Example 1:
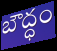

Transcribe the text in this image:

బౌద్ధం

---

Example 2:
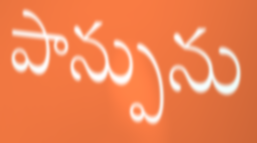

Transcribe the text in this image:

పాన్పును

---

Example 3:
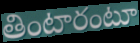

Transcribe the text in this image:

తింటారంటూ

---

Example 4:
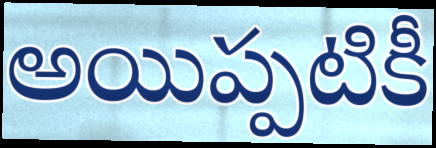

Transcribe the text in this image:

అయిప్పటికీ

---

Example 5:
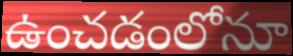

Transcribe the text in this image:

ఉంచడంలోనూ